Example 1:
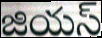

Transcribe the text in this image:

జియస్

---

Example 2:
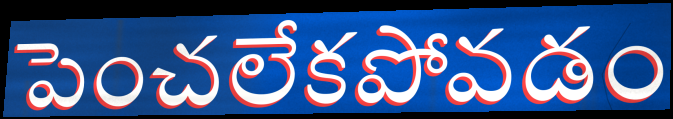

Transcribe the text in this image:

పెంచలేకపోవడం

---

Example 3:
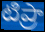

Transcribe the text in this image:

టిప్రా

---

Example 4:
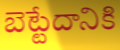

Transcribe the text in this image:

బెట్టేదానికి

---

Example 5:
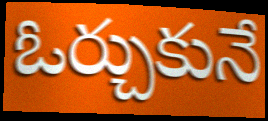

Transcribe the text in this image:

ఓర్చుకునే